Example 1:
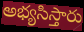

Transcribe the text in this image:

అభ్యసిస్తారు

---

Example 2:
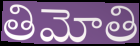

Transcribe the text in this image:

తిమోతి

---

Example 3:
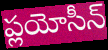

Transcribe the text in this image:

ప్లయోసీన్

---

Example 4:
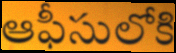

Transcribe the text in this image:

ఆఫీసులోకి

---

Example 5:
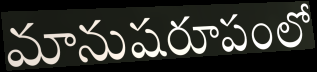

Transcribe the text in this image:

మానుషరూపంలో